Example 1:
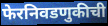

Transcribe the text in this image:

फेरनिवडणुकीची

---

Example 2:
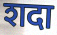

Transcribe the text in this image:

शदा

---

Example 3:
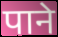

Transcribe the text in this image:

पाने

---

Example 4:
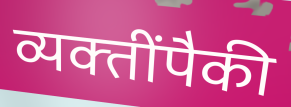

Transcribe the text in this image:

व्यक्‍तींपैकी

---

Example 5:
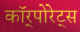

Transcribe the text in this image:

कॉर्पोरेट्‌स